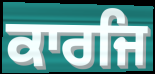
ਕਾਰਜਿ